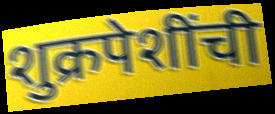
शुक्रपेशींची